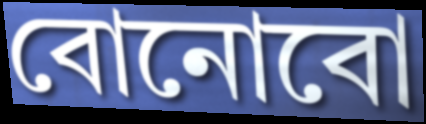
বোনোবো